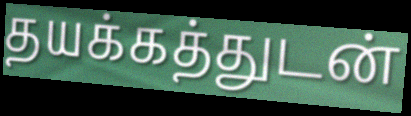
தயக்கத்துடன்